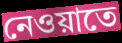
নেওয়াতে